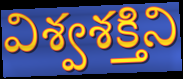
విశ్వశక్తిని